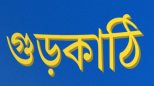
গুড়কাঠি